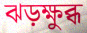
ঝড়ক্ষুব্ধ